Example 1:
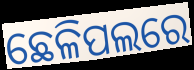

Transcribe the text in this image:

ଛେଳିପଲରେ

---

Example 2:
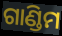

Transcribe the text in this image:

ଗାଣ୍ଡିମ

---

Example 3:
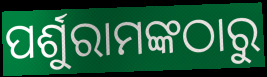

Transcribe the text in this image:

ପର୍ଶୁରାମଙ୍କଠାରୁ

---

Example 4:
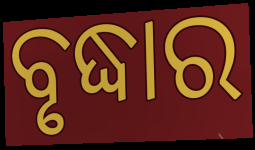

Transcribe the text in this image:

ବୃଦ୍ଧାର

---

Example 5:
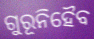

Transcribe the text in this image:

ଗୁରୂନିହୈବ